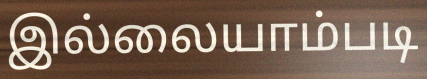
இல்லையாம்படி